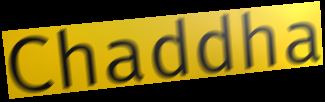
Chaddha